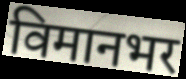
विमानभर